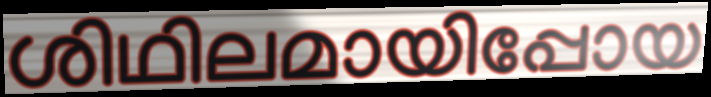
ശിഥിലമായിപ്പോയ